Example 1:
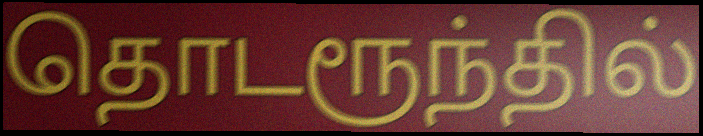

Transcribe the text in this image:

தொடரூந்தில்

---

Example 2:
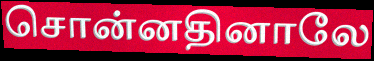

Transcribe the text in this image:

சொன்னதினாலே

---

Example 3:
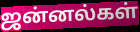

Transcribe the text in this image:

ஜன்னல்கள்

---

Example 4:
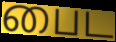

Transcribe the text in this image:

பைட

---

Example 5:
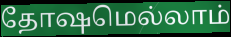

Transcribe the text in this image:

தோஷமெல்லாம்